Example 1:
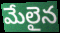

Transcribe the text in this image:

మేలైన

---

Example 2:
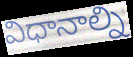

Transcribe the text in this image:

విధానాల్ని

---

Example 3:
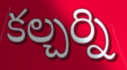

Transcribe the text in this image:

కల్చర్ని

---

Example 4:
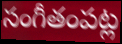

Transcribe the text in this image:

సంగీతంపట్ల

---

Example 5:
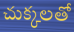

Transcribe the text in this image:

చుక్కలతో